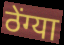
ठेंग्या